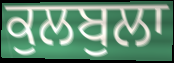
ਕੁਲਬੁਲਾ